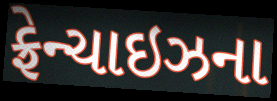
ફ્રેન્ચાઇઝના